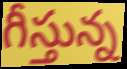
గీస్తున్న